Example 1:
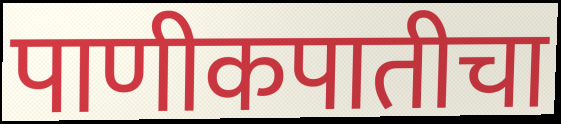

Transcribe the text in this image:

पाणीकपातीचा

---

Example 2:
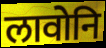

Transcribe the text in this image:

लावोनि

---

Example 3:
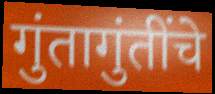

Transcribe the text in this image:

गुंतागुंतींचे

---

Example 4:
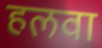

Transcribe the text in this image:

हलवा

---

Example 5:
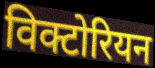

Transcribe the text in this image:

विक्टोरियन